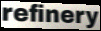
refinery